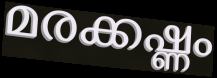
മരക്കഷ്ണം